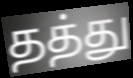
தத்து